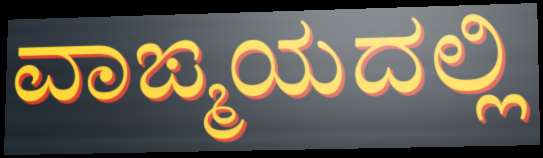
ವಾಙ್ಮಯದಲ್ಲಿ